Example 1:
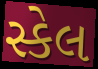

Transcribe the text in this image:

સ્કેલ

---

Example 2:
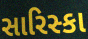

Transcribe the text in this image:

સારિસ્કા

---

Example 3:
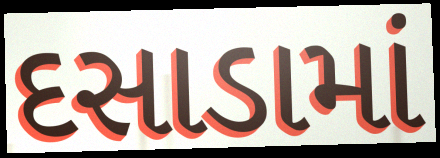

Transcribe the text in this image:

દસાડામાં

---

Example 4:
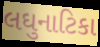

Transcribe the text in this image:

લઘુનાટિકા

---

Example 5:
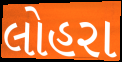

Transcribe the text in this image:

લોહરા